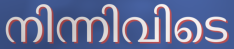
നിന്നിവിടെ